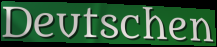
Deutschen